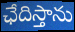
ఛేదిస్తాను